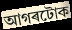
আগৰটোক